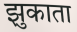
झुकाता